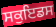
ਸਕੁਇਡਸ